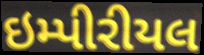
ઇમ્પીરીયલ